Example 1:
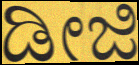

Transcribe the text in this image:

ಡೀಜಿ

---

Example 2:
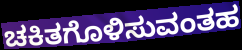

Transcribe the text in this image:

ಚಕಿತಗೊಳಿಸುವಂತಹ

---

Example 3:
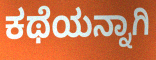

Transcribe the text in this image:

ಕಥೆಯನ್ನಾಗಿ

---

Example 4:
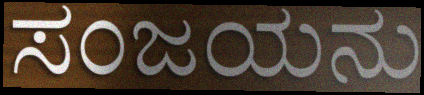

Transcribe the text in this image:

ಸಂಜಯನು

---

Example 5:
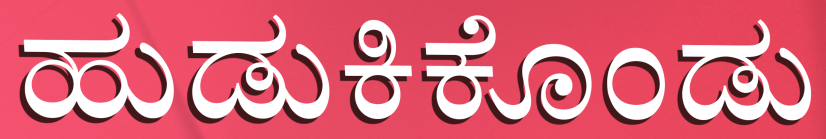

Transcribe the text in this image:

ಹುಡುಕಿಕೊಂಡು